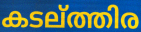
കടല്ത്തിര